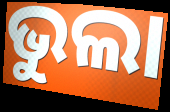
ଭୁଲା